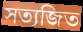
সত্যজিত